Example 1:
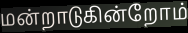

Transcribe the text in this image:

மன்றாடுகின்றோம்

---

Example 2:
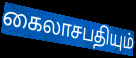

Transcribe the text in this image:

கைலாசபதியும்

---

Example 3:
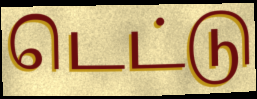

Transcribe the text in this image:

டெட்டு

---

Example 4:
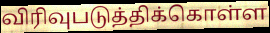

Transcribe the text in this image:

விரிவுபடுத்திக்கொள்ள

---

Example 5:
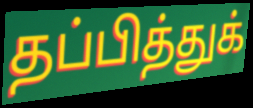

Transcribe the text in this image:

தப்பித்துக்